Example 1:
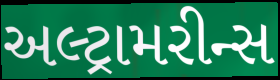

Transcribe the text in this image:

અલ્ટ્રામરીન્સ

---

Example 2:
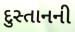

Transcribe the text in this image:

દુસ્તાનની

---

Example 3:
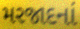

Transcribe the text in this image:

મરજાદનાં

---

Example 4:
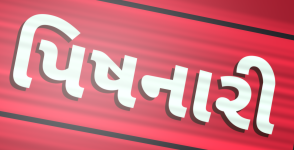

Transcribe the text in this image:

પિષનારી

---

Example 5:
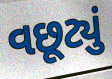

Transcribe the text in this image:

વછૂટ્યું